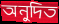
অনুদিত